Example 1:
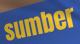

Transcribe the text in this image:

sumber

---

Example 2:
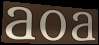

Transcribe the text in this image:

aoa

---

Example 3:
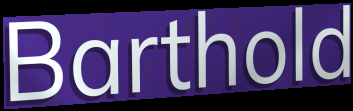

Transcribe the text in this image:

Barthold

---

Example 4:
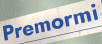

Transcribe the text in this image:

Premormi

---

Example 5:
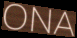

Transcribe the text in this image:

ONA